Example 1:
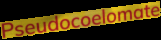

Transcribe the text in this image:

Pseudocoelomate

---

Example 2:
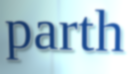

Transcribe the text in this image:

parth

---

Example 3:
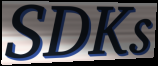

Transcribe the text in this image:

SDKs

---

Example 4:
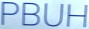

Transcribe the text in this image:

PBUH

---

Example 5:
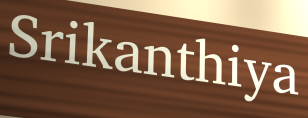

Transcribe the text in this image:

Srikanthiya